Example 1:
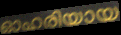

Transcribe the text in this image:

ഓഹരിയായ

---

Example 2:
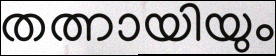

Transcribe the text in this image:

തത്നായിയും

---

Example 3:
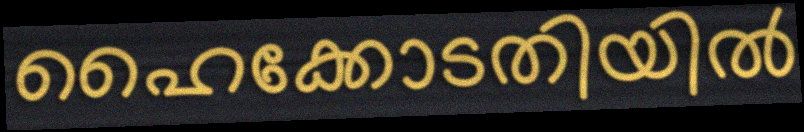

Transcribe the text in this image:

ഹൈക്കോടതിയിൽ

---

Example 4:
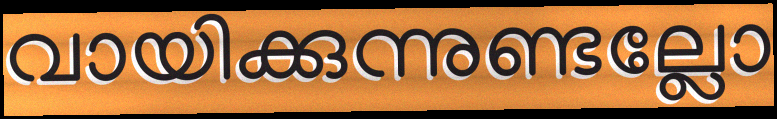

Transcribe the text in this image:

വായിക്കുന്നുണ്ടല്ലോ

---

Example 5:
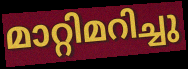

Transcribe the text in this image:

മാറ്റിമറിച്ചു